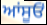
ਆਂਸੂਓਂ